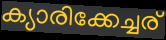
ക്യാരിക്കേച്ചര്